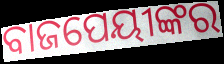
ବାଜପେୟୀଙ୍କର